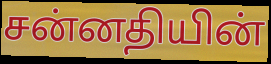
சன்னதியின்